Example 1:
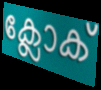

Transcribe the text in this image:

ക്ലോക്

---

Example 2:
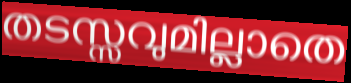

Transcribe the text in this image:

തടസ്സവുമില്ലാതെ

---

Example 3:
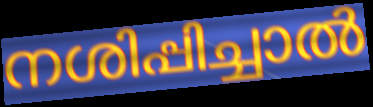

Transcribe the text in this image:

നശിപ്പിച്ചാൽ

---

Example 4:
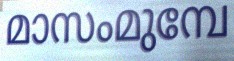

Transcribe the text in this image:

മാസംമുമ്പേ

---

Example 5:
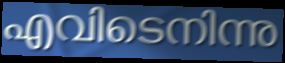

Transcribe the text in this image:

എവിടെനിന്നു